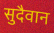
सुदैवान